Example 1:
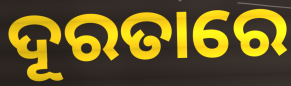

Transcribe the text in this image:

ଦୂରତାରେ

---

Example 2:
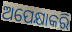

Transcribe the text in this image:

ଅପେକ୍ଷାକରି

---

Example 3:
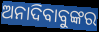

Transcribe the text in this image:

ଅନାଦିବାବୁଙ୍କର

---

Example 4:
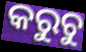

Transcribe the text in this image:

କରୁଚୁ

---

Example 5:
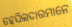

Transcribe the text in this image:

ତହସିଲଦାରମାନେ